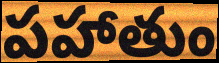
పహాతుం